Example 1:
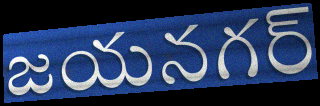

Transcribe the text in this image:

జయనగర్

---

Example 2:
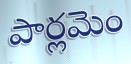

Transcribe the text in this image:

పార్లమెం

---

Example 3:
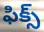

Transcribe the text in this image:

ఫిక్స్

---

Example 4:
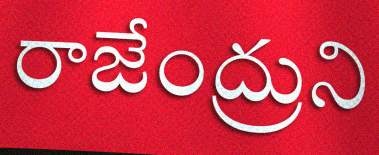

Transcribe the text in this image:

రాజేంద్రుని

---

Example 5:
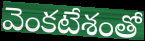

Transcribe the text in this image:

వెంకటేశంతో